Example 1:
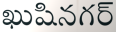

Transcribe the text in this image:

ఖుషినగర్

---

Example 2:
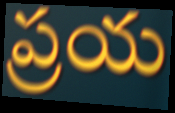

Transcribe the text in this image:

ప్రయ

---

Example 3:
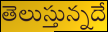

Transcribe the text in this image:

తెలుస్తున్నదే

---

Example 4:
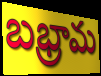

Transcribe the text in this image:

బభ్రామ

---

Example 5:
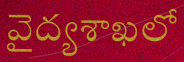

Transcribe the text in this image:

వైద్యశాఖలో